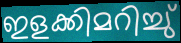
ഇളക്കിമറിച്ചു്